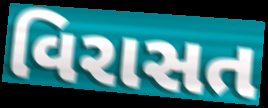
વિરાસત